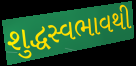
શુદ્ધસ્વભાવથી